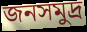
জনসমুদ্র